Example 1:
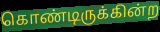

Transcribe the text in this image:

கொண்டிருக்கின்ற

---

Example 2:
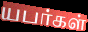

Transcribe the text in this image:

யபர்கள்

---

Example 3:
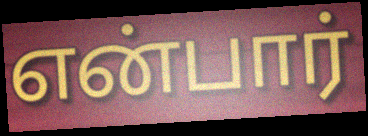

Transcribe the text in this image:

என்பார்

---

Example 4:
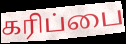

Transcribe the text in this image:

கரிப்பை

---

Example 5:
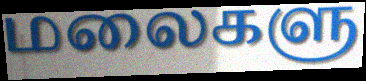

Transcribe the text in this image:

மலைகளு